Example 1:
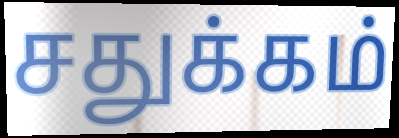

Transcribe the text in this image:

சதுக்கம்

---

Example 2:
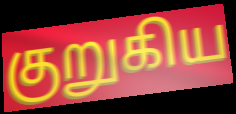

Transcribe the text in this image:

குறுகிய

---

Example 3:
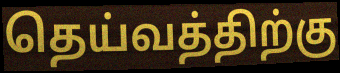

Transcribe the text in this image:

தெய்வத்திற்கு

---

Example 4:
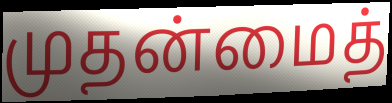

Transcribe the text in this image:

முதன்மைத்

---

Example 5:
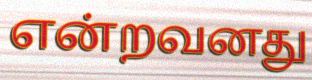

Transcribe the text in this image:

என்றவனது